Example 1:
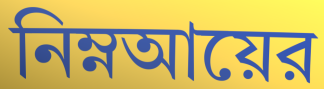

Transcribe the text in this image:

নিম্নআয়ের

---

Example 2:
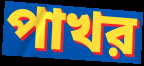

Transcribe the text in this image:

পাখর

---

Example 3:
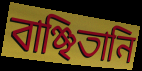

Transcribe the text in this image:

বাঞ্ছিতানি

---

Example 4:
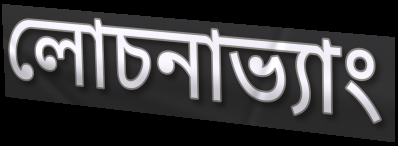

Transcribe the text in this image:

লোচনাভ্যাং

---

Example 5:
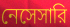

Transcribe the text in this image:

নেসেসারি